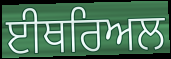
ਈਥਰਿਅਲ